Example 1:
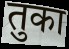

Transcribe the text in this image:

तुका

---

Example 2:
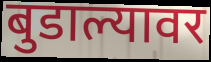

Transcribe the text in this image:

बुडाल्यावर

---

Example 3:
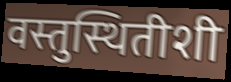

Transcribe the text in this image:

वस्तुस्थितीशी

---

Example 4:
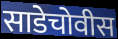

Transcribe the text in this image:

साडेचोवीस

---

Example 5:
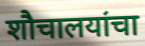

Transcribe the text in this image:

शौचालयांचा